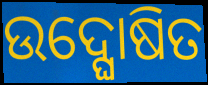
ଉଦ୍ଘୋଷିତ